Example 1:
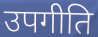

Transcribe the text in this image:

उपगीति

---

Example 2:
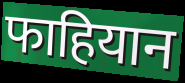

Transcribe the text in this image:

फाहियान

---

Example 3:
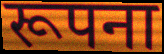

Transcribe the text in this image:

रूपना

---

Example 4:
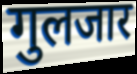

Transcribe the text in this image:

गुलजार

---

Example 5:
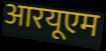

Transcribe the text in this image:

आरयूएम